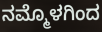
ನಮ್ಮೊಳಗಿಂದ